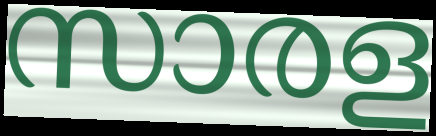
സാരള